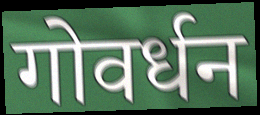
गोवर्धन